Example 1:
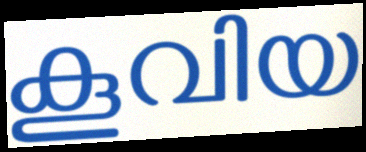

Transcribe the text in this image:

കൂവിയ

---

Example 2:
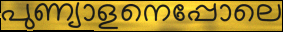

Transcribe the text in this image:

പുണ്യാളനെപ്പോലെ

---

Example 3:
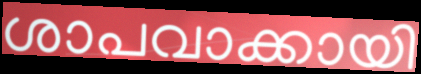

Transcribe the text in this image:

ശാപവാക്കായി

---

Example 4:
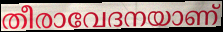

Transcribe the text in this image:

തീരാവേദനയാണ്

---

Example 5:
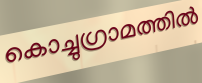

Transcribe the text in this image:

കൊച്ചുഗ്രാമത്തിൽ